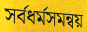
সর্বধর্মসমন্বয়